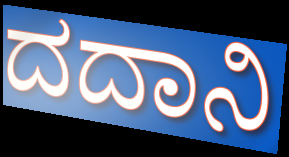
ದದಾನಿ